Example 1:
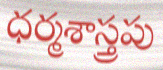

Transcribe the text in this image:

ధర్మశాస్త్రపు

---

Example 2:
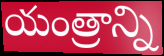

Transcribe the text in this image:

యంత్రాన్ని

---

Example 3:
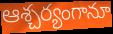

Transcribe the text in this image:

ఆశ్చర్యంగానూ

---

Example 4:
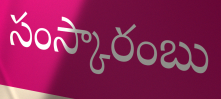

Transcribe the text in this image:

సంస్కారంబు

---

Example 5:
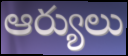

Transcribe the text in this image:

ఆర్యులు